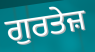
ਗੁਰਤੇਜ਼